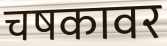
चषकावर